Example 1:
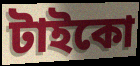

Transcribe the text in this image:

টাইকো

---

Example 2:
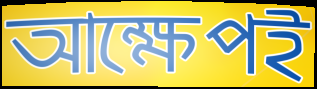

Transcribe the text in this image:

আক্ষেপই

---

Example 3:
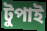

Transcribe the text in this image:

টুপাই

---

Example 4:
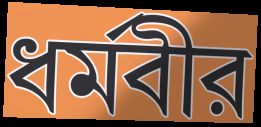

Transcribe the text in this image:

ধর্মবীর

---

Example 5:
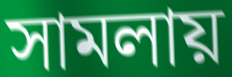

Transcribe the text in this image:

সামলায়